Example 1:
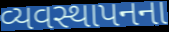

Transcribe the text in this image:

વ્યવસ્થાપનના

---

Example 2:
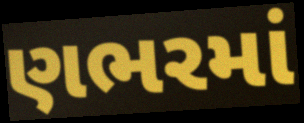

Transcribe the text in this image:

ણભરમાં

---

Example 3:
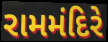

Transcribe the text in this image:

રામમંદિરે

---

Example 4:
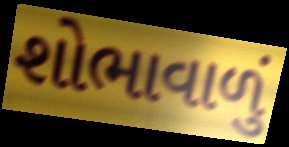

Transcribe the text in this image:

શોભાવાળું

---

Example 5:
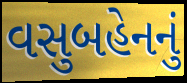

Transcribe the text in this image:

વસુબહેનનું